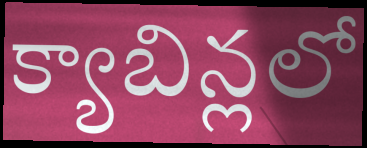
క్యాబిన్లలో